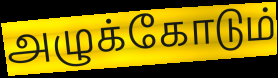
அழுக்கோடும்